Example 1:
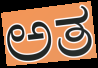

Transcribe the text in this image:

ಅತ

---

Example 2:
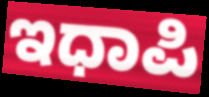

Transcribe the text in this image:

ಇಧಾಪಿ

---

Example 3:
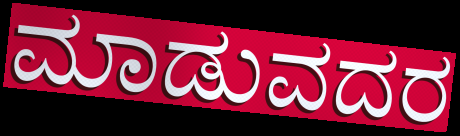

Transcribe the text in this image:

ಮಾಡುವದರ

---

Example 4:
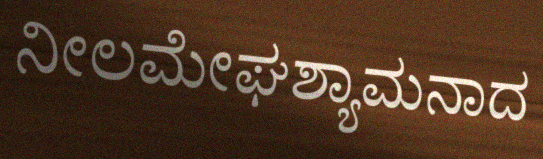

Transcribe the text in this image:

ನೀಲಮೇಘಶ್ಯಾಮನಾದ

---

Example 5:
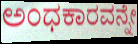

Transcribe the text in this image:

ಅಂಧಕಾರವನ್ನೇ